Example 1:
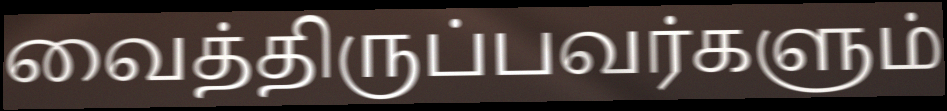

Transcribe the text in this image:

வைத்திருப்பவர்களும்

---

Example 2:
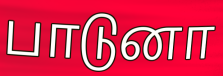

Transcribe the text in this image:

பாடுனா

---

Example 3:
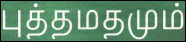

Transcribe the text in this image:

புத்தமதமும்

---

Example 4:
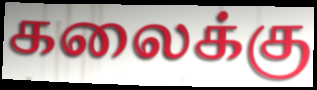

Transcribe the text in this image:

கலைக்கு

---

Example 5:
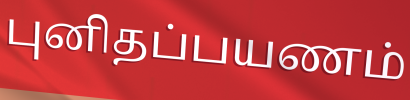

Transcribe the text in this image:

புனிதப்பயணம்